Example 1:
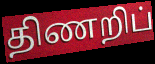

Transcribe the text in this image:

திணறிப்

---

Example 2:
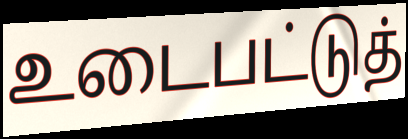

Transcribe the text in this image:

உடைபட்டுத்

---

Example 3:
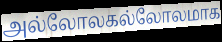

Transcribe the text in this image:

அல்லோலகல்லோலமாக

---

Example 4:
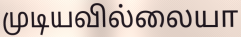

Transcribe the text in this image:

முடியவில்லையா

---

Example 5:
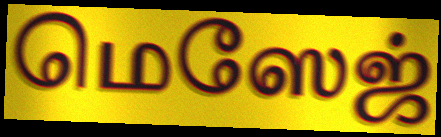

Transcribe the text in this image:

மெஸேஜ்